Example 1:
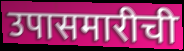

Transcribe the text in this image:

उपासमारीची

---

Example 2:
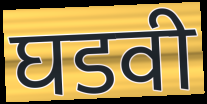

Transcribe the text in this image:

घडवी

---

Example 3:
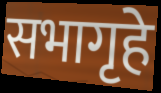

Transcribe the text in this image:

सभागृहे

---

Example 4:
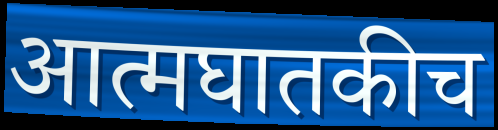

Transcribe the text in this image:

आत्मघातकीच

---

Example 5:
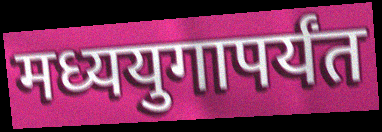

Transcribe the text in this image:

मध्ययुगापर्यंत